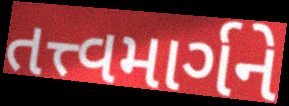
તત્ત્વમાર્ગને